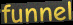
funnel